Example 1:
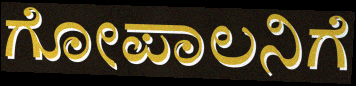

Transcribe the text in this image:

ಗೋಪಾಲನಿಗೆ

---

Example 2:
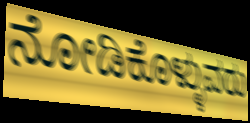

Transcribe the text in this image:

ನೋಡಿಕೊಳ್ಳುವರು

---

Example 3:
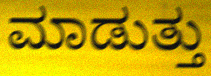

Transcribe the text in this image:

ಮಾಡುತ್ತು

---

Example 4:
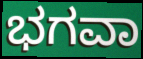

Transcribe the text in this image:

ಭಗವಾ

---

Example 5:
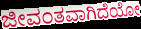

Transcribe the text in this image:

ಜೀವಂತವಾಗಿದೆಯೋ